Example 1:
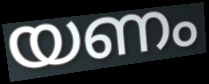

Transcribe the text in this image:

യണം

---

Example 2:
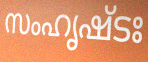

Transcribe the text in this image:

സംഹൃഷ്ടഃ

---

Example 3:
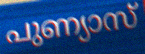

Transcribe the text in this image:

പുണ്യാസ്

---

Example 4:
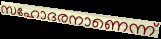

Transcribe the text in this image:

സഹോദരനാണെന്ന്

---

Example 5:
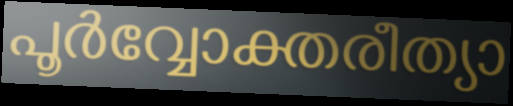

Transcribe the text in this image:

പൂർവ്വോക്തരീത്യാ